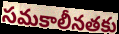
సమకాలీనతకు